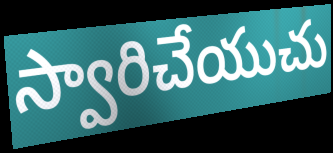
స్వారిచేయుచు